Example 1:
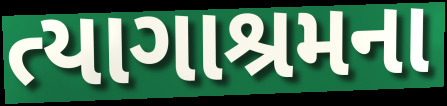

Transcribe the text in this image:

ત્યાગાશ્રમના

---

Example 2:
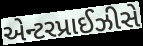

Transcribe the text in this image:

એન્ટરપ્રાઈઝીસે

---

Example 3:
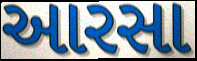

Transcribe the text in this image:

આરસા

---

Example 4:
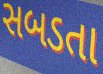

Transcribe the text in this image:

સબડતા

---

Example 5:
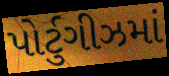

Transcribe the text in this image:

પોર્ટુગીઝમાં